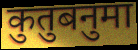
कुतुबनुमा